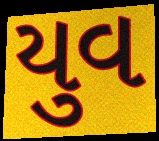
યુવ